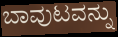
ಬಾವುಟವನ್ನು